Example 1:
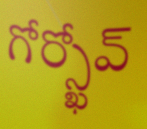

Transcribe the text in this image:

గోర్స్ఖోవ్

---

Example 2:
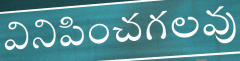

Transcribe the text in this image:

వినిపించగలవు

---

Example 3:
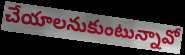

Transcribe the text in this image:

చేయాలనుకుంటున్నావో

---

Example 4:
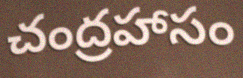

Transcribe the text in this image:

చంద్రహాసం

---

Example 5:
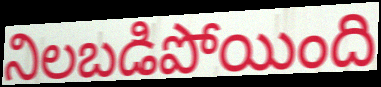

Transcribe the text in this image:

నిలబడిపోయింది